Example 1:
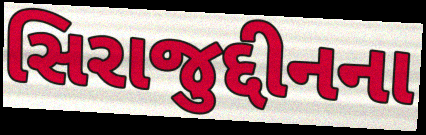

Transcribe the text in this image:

સિરાજુદ્દીનના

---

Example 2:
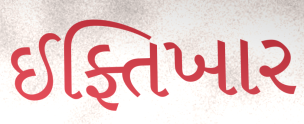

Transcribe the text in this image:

ઈફ્તિખાર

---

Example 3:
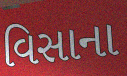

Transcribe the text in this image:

વિસાના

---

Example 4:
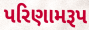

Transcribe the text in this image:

પરિણામરૂપ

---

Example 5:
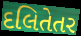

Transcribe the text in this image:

દલિતેતર